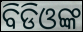
ବିଡିଓଙ୍କ